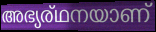
അഭ്യര്ഥനയാണ്